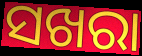
ସଖରା